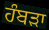
ਹੰਬੜਾ